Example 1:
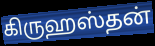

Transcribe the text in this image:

கிருஹஸ்தன்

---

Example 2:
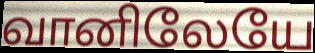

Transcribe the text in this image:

வானிலேயே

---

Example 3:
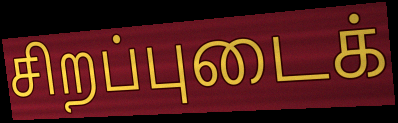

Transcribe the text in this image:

சிறப்புடைக்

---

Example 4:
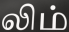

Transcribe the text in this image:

லிம்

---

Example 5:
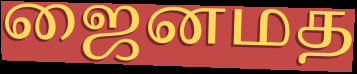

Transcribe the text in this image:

ஜைனமத